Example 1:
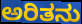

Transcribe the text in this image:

ಅರಿತನು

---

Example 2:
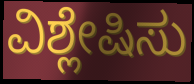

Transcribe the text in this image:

ವಿಶ್ಲೇಷಿಸು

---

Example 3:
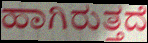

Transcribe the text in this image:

ಹಾಗಿರುತ್ತದೆ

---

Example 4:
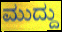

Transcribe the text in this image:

ಮುದ್ದು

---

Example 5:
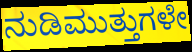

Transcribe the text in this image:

ನುಡಿಮುತ್ತುಗಳೇ